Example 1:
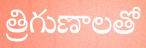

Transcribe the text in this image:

త్రిగుణాలతో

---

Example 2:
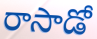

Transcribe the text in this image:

రాసాడో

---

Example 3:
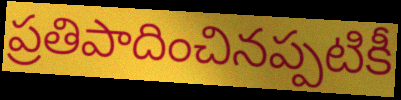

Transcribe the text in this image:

ప్రతిపాదించినప్పటికీ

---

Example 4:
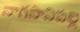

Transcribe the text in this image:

నాగసానిపల్లె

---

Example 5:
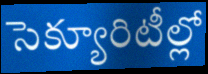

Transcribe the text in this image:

సెక్యూరిటీల్లో